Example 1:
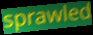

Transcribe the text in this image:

sprawled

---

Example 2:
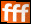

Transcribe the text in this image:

fff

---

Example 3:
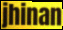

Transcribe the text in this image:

jhinan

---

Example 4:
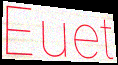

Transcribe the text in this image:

Euet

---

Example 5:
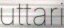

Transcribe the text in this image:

uttari